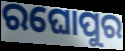
ରଘୋପୁର